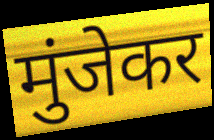
मुंजेकर